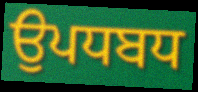
ਉਪਧਬਧ